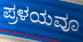
ಪ್ರಳಯವೂ